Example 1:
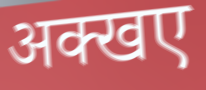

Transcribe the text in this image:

अक्खए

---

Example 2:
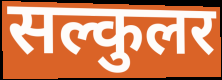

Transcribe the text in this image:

सल्कुलर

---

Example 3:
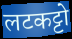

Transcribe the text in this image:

लटकट्टो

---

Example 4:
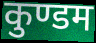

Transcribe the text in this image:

कुण्डम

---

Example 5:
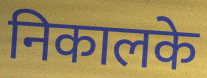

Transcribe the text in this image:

निकालके